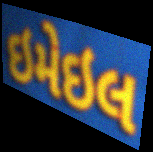
ઇમેઇલ